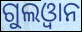
ଗୁଲଓ୍ୱାନ